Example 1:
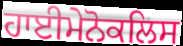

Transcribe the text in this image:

ਹਾਈਮੇਨੋਕਲਿਸ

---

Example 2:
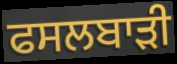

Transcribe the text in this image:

ਫਸਲਬਾੜੀ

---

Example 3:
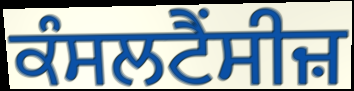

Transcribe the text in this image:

ਕੰਸਲਟੈਂਸੀਜ਼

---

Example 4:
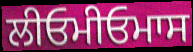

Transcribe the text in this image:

ਲੀਓਮੀਓਮਾਸ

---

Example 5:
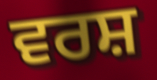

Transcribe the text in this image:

ਵਰਸ਼